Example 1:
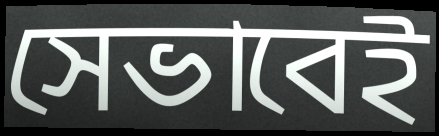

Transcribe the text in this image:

সেভাবেই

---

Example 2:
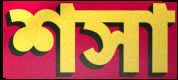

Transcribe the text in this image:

শসা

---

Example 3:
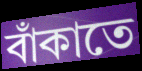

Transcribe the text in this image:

বাঁকাতে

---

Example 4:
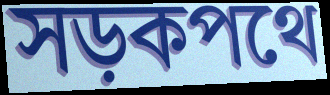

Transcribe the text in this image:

সড়কপথে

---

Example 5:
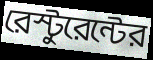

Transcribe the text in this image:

রেস্টুরেন্টের